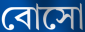
বোসো